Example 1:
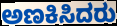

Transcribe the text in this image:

ಅಣಕಿಸಿದರು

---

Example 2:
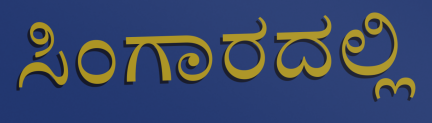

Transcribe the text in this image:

ಸಿಂಗಾರದಲ್ಲಿ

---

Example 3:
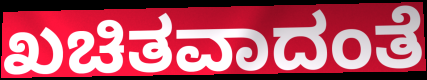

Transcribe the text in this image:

ಖಚಿತವಾದಂತೆ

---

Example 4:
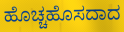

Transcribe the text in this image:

ಹೊಚ್ಚಹೊಸದಾದ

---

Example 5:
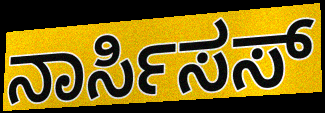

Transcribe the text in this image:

ನಾರ್ಸಿಸಸ್